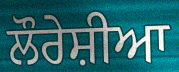
ਲੌਰੇਸ਼ੀਆ